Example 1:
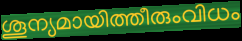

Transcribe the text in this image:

ശൂന്യമായിത്തീരുംവിധം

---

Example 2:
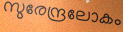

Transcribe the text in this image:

സുരേന്ദ്രലോകം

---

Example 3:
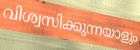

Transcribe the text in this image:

വിശ്വസിക്കുന്നയാളും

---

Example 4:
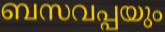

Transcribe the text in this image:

ബസവപ്പയും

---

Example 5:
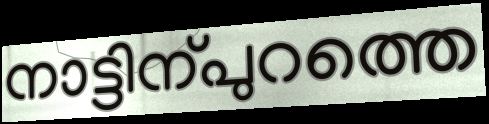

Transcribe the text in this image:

നാട്ടിന്പുറത്തെ